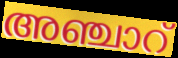
അഞ്ചാറ്